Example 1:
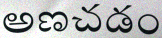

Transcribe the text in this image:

అణచడం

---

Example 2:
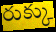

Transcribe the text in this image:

రుక్కు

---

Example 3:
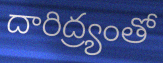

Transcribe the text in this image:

దారిద్ర్యంతో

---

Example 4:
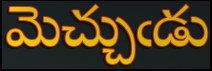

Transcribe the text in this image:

మెచ్చుఁడు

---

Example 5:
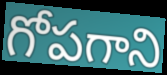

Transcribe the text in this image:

గోపగాని